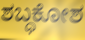
ಶಬ್ಧಕೋಶ